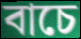
বাচে